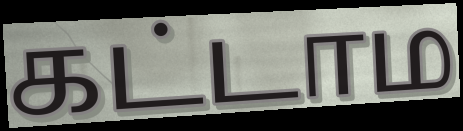
கட்டாம